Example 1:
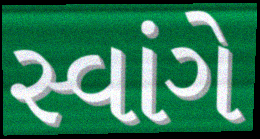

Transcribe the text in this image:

સ્વાંગે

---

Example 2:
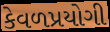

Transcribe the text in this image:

કેવળપ્રયોગી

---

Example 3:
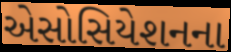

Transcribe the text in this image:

એસોસિયેશનના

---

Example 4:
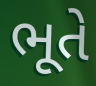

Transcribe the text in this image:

ભૂતે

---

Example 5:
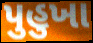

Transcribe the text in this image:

પુહુખા